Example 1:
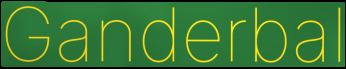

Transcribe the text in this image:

Ganderbal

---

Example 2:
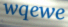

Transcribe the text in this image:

wqewe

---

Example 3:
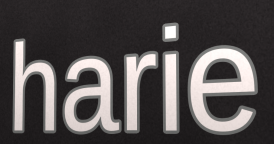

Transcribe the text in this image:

harie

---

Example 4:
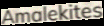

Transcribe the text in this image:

Amalekites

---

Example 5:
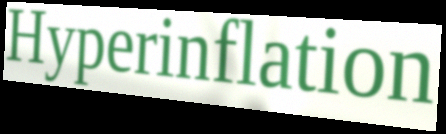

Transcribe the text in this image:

Hyperinflation